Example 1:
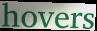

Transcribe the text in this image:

hovers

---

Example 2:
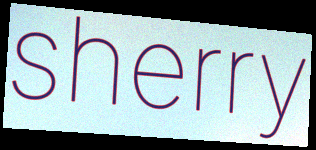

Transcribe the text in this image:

sherry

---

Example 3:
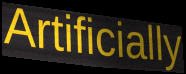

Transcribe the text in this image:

Artificially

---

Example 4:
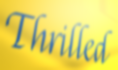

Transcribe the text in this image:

Thrilled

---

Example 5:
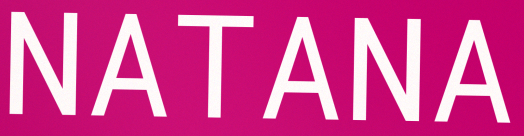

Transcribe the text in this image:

NATANA